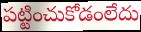
పట్టించుకోడంలేదు